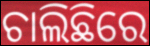
ଚାଲିଛିରେ